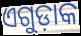
ଏଗୁଡ଼ାକ